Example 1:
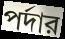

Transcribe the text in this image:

পর্দার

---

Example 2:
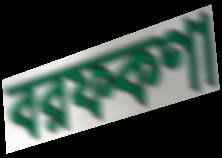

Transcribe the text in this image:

বরফকণা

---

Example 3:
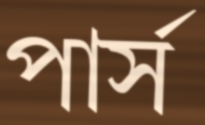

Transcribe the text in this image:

পার্স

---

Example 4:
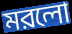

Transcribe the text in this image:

মরলো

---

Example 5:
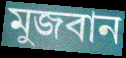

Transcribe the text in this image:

মুজবান